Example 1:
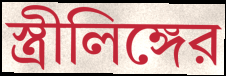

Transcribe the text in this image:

স্ত্রীলিঙ্গের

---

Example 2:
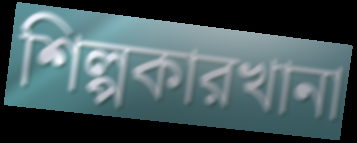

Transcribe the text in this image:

শিল্পকারখানা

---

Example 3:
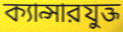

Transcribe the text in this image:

ক্যান্সারযুক্ত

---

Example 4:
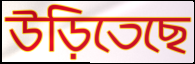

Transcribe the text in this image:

উড়িতেছে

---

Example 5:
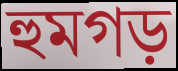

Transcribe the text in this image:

হুমগড়